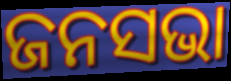
ଜନସଭା